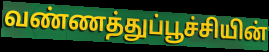
வண்ணத்துப்பூச்சியின்